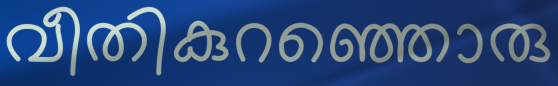
വീതികുറഞ്ഞൊരു